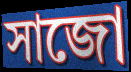
সাজো